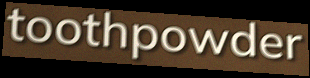
toothpowder